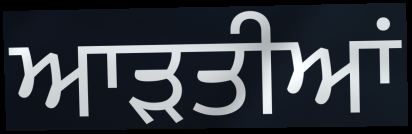
ਆੜਤੀਆਂ